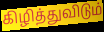
கிழித்துவிடும்